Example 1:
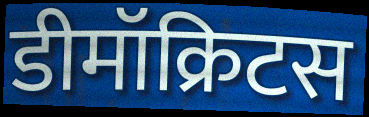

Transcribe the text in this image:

डीमॉक्रिटस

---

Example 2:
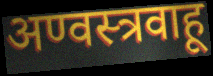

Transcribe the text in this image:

अण्वस्त्रवाहू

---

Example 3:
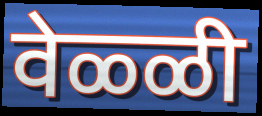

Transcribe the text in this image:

वेळ्ळी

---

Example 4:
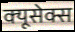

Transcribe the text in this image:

क्यूसेक्स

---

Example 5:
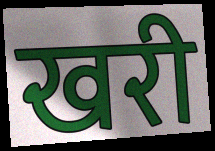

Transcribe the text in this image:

खरी